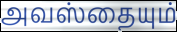
அவஸ்தையும்